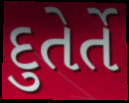
દુતેર્તે